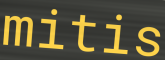
mitis